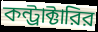
কন্ট্রাক্টারির